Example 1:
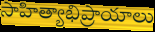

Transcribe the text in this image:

సాహిత్యాభిప్రాయాలు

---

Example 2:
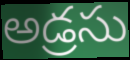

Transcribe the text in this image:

అడ్రసు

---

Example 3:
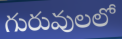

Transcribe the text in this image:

గురువులలో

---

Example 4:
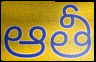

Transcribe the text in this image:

ఆతీ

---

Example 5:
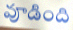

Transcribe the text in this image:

వూడింది